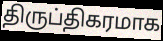
திருப்திகரமாக